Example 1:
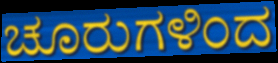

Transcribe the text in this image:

ಚೂರುಗಳಿಂದ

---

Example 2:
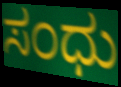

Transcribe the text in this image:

ಸಂಧು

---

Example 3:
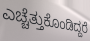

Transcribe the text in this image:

ಎಚ್ಚೆತ್ತುಕೊಂಡಿದ್ದರೆ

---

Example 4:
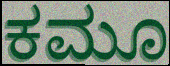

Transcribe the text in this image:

ಕಮೂ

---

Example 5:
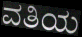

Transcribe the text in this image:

ವತಿಯ